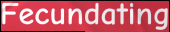
Fecundating